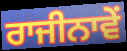
ਰਾਜੀਨਾਵੇਂ